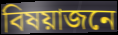
বিষয়াজনে